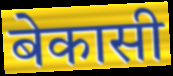
बेकासी